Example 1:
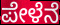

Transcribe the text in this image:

ಪೇಳೆನೆ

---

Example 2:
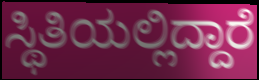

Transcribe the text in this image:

ಸ್ಥಿತಿಯಲ್ಲಿದ್ದಾರೆ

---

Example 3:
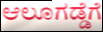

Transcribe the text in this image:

ಆಲೂಗಡ್ಡೆಗೆ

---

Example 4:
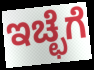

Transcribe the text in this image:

ಇಚ್ಛೆಗೆ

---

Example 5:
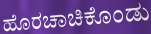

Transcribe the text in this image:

ಹೊರಚಾಚಿಕೊಂಡು